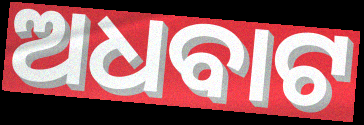
ଅଧବାଟ